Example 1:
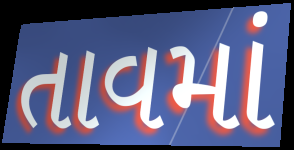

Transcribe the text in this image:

તાવમાં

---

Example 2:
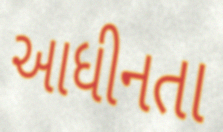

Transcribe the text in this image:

આધીનતા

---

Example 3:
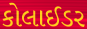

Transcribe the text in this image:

કોલાઈડર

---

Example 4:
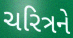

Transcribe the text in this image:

ચરિત્રને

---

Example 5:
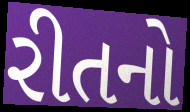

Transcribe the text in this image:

રીતનો